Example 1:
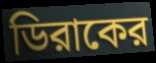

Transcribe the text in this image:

ডিরাকের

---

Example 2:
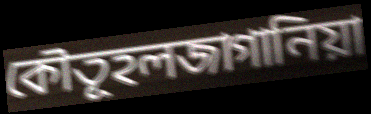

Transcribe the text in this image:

কৌতূহলজাগানিয়া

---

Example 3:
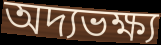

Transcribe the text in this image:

অদ্যভক্ষ্য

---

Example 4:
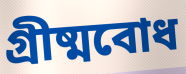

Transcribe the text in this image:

গ্রীষ্মবোধ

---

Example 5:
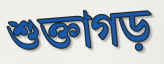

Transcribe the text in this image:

শুক্তাগড়